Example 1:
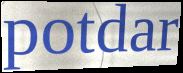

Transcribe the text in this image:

potdar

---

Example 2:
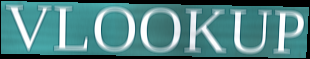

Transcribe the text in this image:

VLOOKUP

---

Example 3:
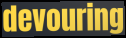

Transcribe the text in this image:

devouring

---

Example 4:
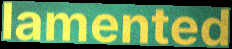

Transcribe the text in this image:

lamented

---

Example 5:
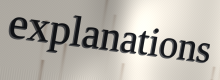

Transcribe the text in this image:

explanations